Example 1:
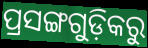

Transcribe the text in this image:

ପ୍ରସଙ୍ଗଗୁଡ଼ିକରୁ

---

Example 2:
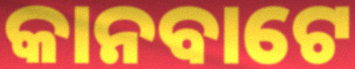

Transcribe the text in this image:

କାନବାଟେ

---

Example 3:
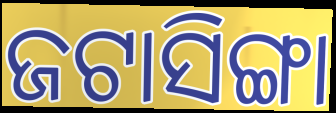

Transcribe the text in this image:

ଜଟାସିଙ୍ଗା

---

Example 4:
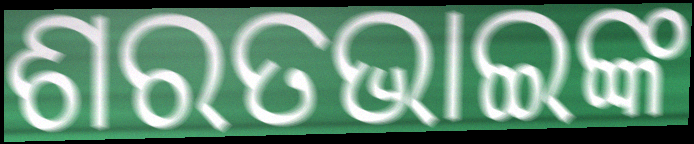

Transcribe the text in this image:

ଶରତଭାଇଙ୍କ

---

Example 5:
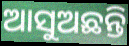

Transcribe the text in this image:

ଆସୁଅଛନ୍ତି